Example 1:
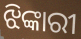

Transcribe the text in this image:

ଝିଙ୍କାରୀ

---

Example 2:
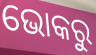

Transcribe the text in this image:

ଭୋକରୁ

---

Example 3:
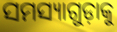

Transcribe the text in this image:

ସମସ୍ୟାଗୁଡ଼ାକୁ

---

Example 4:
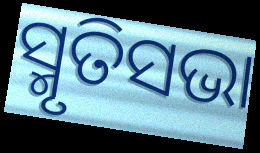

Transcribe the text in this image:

ସ୍ମୃତିସଭା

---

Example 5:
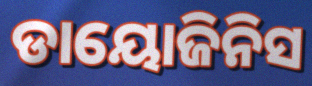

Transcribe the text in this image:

ଡାୟୋଜିନିସ